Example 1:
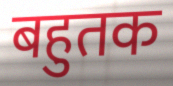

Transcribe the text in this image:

बहुतक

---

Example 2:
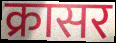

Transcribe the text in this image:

क्रासर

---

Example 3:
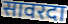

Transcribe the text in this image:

सावरदा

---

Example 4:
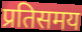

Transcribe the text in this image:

प्रतिसमय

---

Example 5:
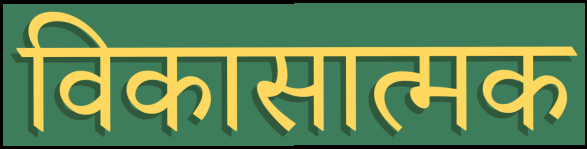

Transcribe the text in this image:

विकासात्मक